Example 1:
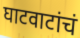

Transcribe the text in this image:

घाटवाटांचं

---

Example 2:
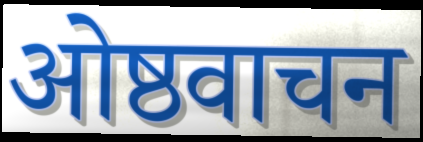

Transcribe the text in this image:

ओष्ठवाचन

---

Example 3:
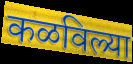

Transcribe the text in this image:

कळविल्या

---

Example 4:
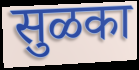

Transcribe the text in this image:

सुळका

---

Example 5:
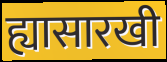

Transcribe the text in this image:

ह्यासारखी